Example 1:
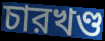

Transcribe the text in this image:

চারখণ্ড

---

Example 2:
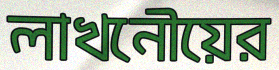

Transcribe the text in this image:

লাখনৌয়ের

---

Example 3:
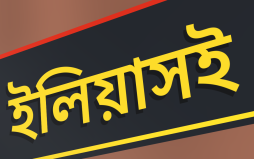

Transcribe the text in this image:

ইলিয়াসই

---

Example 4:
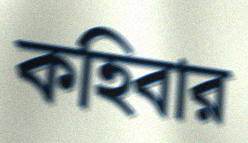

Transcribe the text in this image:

কহিবার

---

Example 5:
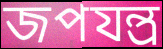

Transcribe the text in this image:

জপযন্ত্র